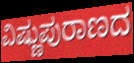
ವಿಷ್ಣುಪುರಾಣದ